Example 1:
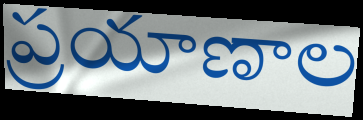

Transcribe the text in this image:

ప్రయాణాల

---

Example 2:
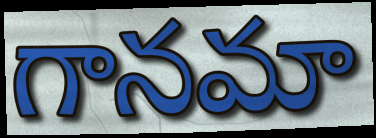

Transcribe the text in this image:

గానమా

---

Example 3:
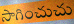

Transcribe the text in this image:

సాగించుచు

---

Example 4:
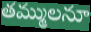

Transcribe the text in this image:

తమ్ములనూ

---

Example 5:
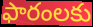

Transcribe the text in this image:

ఫారంలకు